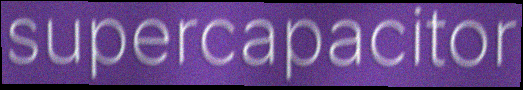
supercapacitor